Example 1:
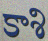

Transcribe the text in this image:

కాశి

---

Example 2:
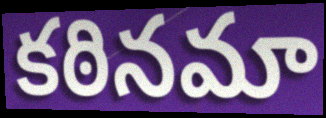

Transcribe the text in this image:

కఠినమా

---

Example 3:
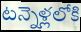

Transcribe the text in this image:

టన్నెళ్లలోకి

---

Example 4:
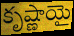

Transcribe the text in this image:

కృష్ణాయై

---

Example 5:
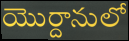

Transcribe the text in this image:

యొర్దానులో